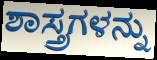
ಶಾಸ್ತ್ರಗಳನ್ನು